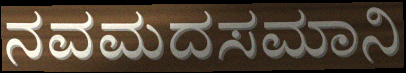
ನವಮದಸಮಾನಿ